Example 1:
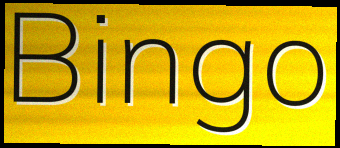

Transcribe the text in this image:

Bingo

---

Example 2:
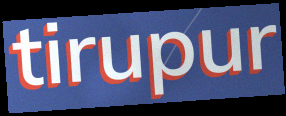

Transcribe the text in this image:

tirupur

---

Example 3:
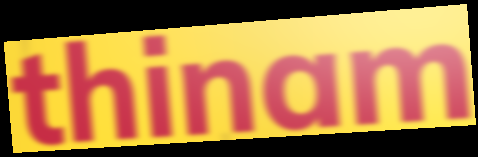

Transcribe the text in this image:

thinam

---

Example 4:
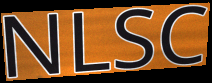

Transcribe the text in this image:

NLSC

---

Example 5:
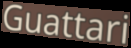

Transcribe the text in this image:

Guattari